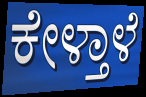
ಕೇಳ್ತಾಳೆ